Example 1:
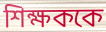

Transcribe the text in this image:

শিক্ষককে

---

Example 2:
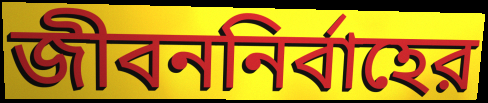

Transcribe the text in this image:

জীবননির্বাহের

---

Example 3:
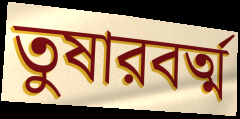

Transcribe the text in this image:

তুষারবর্ত্ম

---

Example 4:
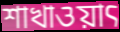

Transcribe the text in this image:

শাখাওয়াৎ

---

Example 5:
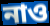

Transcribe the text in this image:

নাও